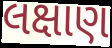
લક્ષાણ